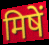
मिषें